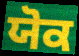
ਯੋਕ